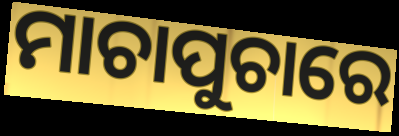
ମାଚାପୁଚାରେ